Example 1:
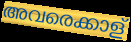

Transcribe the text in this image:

അവരെക്കാള്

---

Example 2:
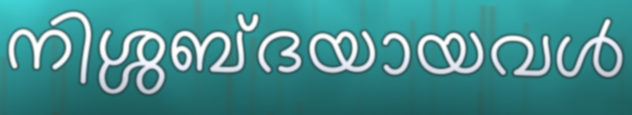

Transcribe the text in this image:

നിശ്ശബ്ദയായവൾ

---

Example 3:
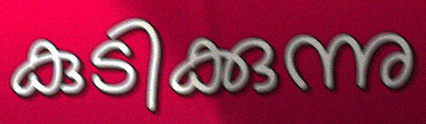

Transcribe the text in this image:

കുടിക്കുന്നു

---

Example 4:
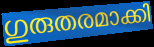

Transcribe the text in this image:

ഗുരുതരമാക്കി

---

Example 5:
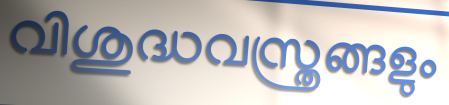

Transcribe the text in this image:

വിശുദ്ധവസ്ത്രങ്ങളും